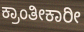
ಕ್ರಾಂತೀಕಾರೀ